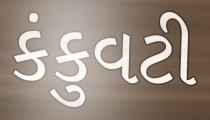
કંકુવટી